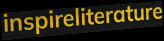
inspireliterature